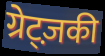
ग्रेट्ज़की